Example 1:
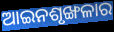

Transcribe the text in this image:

ଆଇନଶୃଙ୍ଖଳାର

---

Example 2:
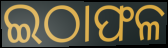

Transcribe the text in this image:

ଇଠାଫଳ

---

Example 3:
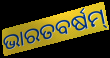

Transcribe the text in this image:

ଭାରତବର୍ଷମ୍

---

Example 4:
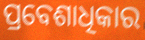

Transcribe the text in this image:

ପ୍ରବେଶାଧିକାର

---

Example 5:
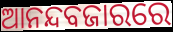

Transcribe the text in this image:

ଆନନ୍ଦବଜାରରେ